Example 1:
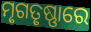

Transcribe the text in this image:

ମୃଗତୃଷ୍ଣାରେ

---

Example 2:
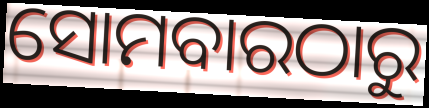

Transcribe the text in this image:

ସୋମବାରଠାରୁ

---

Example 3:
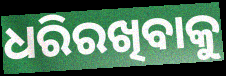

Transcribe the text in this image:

ଧରିରଖିବାକୁ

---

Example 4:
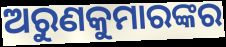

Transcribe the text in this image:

ଅରୁଣକୁମାରଙ୍କର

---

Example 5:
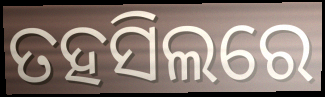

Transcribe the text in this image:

ତହସିଲରେ